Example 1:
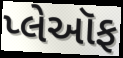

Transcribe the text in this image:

પ્લેઑફ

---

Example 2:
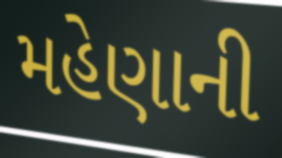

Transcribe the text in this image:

મહેણાની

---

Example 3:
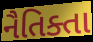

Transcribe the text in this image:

નૈતિક્તા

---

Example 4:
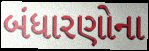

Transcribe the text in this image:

બંધારણોના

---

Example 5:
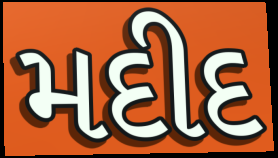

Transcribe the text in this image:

મદીદ